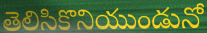
తెలిసికొనియుండునో